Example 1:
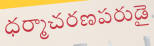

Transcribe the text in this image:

ధర్మాచరణపరుడై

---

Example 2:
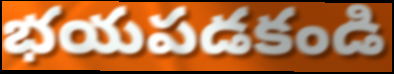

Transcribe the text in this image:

భయపడకండి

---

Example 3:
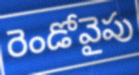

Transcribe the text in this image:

రెండోవైపు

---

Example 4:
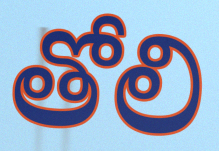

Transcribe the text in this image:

తోలి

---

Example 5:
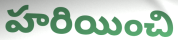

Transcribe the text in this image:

హరియించి